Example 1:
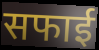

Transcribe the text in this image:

सफाई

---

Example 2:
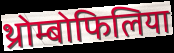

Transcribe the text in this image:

थ्रोम्बोफिलिया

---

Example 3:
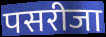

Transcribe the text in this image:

पसरीजा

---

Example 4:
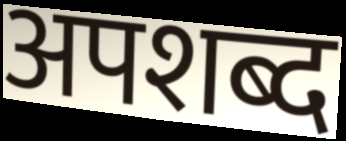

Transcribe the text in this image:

अपशब्द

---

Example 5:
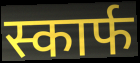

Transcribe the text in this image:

स्कार्फ